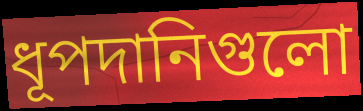
ধূপদানিগুলো